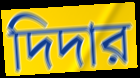
দিদার